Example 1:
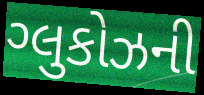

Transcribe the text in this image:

ગ્લુકોઝની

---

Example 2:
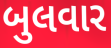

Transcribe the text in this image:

બુલવાર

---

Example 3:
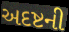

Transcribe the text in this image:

અદષ્ટની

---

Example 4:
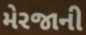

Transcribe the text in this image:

મેરજાની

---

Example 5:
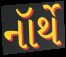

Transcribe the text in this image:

નૉર્થે